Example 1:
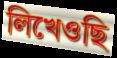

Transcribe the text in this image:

লিখেওছি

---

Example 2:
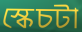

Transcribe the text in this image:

স্কেচটা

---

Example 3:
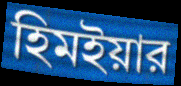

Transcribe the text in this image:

হিমইয়ার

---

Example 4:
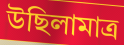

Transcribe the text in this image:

উছিলামাত্র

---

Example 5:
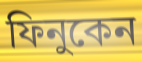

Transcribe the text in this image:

ফিনুকেন